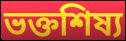
ভক্তশিষ্য